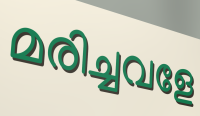
മരിച്ചവളേ